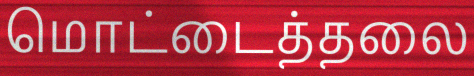
மொட்டைத்தலை